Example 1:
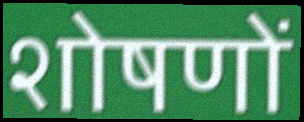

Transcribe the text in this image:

शोषणों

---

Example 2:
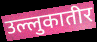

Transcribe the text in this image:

उल्लुकातीर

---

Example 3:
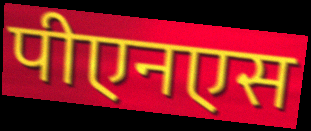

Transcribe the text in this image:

पीएनएस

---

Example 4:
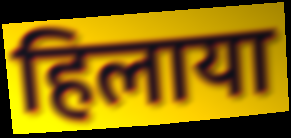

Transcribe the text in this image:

हिलाया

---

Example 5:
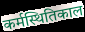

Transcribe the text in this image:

कर्मस्थितिकाल